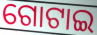
ଗୋଟାଇ